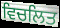
ਵਿਚਲਿਤ